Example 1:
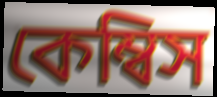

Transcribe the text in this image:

কেম্বিস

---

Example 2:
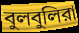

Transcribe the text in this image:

বুলবুলিরা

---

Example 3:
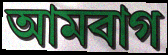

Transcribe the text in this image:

আমবাগ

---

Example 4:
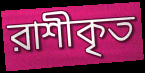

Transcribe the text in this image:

রাশীকৃত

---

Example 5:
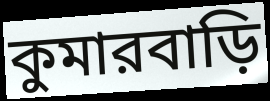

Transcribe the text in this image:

কুমারবাড়ি